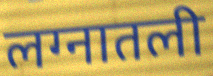
लग्नातली